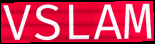
VSLAM